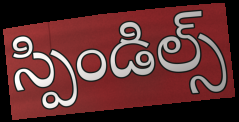
స్పిండిల్స్